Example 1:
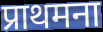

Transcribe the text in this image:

प्राथमना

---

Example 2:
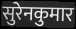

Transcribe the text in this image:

सुरेनकुमार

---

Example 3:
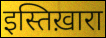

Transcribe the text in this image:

इस्तिख़ारा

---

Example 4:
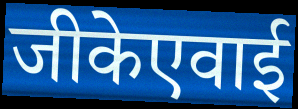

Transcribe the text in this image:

जीकेएवाई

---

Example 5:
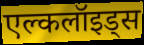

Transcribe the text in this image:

एल्कलॉइड्स